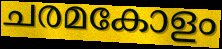
ചരമകോളം